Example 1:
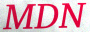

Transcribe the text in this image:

MDN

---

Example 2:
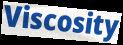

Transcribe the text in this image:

Viscosity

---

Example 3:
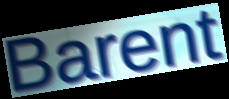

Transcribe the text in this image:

Barent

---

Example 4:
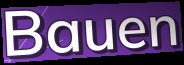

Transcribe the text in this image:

Bauen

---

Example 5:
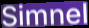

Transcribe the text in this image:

Simnel